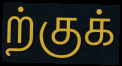
ற்குக்